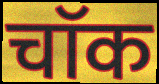
चॉक